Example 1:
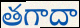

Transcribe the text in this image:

తగాదా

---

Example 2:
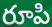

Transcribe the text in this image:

రూపి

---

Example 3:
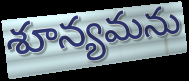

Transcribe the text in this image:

శూన్యమను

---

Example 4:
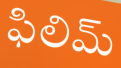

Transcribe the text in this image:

ఫిలిమ్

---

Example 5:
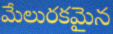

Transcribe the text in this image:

మేలురకమైన